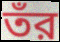
তঁর